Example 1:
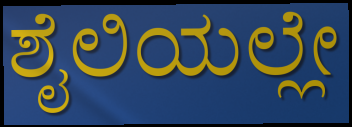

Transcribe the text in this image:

ಶೈಲಿಯಲ್ಲೇ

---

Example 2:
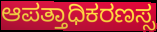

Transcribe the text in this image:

ಆಪತ್ತಾಧಿಕರಣಸ್ಸ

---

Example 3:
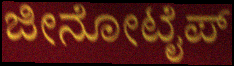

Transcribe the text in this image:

ಜೀನೋಟೈಪ್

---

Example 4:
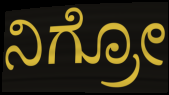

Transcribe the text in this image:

ನಿಗ್ರೋ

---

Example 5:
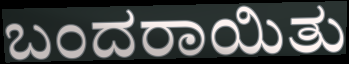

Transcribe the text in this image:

ಬಂದರಾಯಿತು